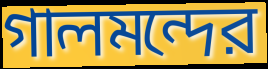
গালমন্দের